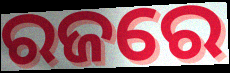
ରଜରେ